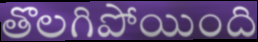
తొలగిపోయింది